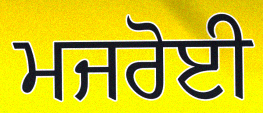
ਮਜਰੋਈ